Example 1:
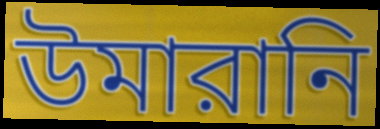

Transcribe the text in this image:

উমারানি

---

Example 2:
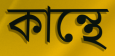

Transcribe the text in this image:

কান্থে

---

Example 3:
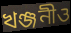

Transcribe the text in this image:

খঞ্জনীও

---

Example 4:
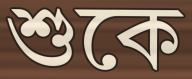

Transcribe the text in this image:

শুকে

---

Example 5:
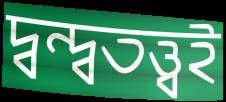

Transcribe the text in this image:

দ্বন্দ্বতত্ত্বই